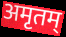
अमृतम्